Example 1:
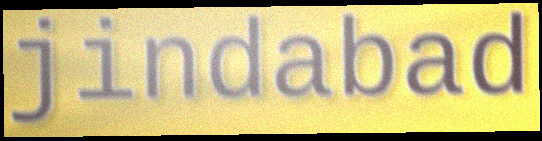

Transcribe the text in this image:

jindabad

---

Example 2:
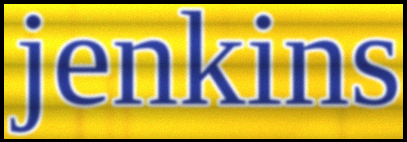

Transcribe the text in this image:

jenkins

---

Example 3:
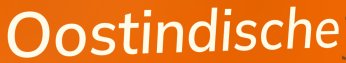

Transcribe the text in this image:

Oostindische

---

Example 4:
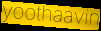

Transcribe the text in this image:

yoothaavin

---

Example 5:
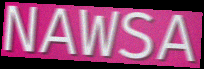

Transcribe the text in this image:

NAWSA